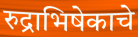
रुद्राभिषेकाचे